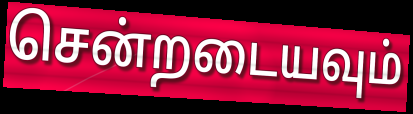
சென்றடையவும்